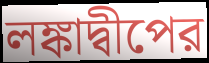
লঙ্কাদ্বীপের